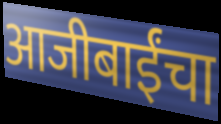
आजीबाईंचा